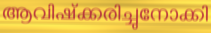
ആവിഷ്ക്കരിച്ചുനോക്കി